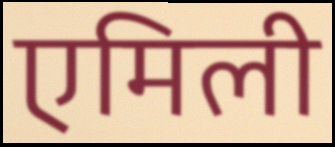
एमिली